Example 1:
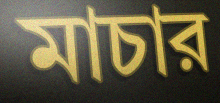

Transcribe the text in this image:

মাচার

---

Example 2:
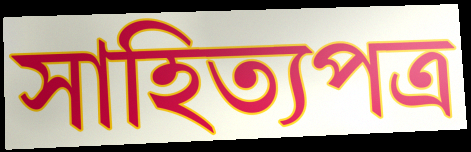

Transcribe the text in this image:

সাহিত্যপত্র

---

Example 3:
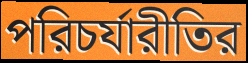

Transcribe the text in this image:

পরিচর্যারীতির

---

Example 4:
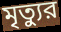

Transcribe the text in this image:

মৃত্যুর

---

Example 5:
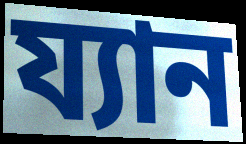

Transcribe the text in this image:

য্যান